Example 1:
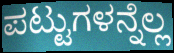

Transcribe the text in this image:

ಪಟ್ಟುಗಳನ್ನೆಲ್ಲ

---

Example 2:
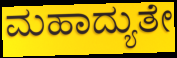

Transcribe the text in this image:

ಮಹಾದ್ಯುತೇ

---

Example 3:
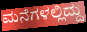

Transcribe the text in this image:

ಮನೆಗಳಲ್ಲಿದ್ದು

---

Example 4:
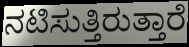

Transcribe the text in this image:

ನಟಿಸುತ್ತಿರುತ್ತಾರೆ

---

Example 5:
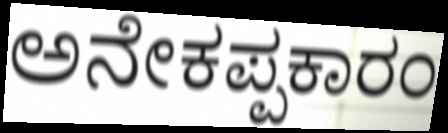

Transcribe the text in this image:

ಅನೇಕಪ್ಪಕಾರಂ